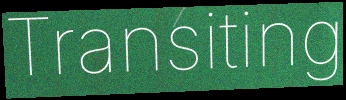
Transiting